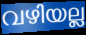
വഴിയല്ല